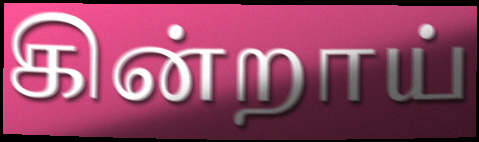
கின்றாய்